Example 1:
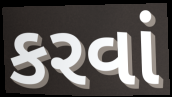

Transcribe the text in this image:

કરવાં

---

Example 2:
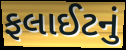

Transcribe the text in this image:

ફલાઈટનું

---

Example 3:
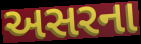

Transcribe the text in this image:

અસરના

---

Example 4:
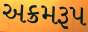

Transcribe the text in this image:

અક્રમરૂપ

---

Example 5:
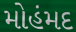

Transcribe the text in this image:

મોહંમદ